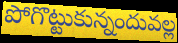
పోగొట్టుకున్నందువల్ల